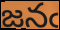
జనఁ